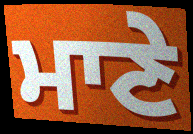
ਮਾਣੇ